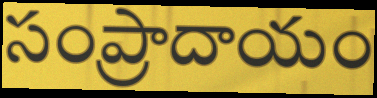
సంప్రాదాయం